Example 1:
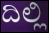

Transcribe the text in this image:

ದಿಲ್ಲಿ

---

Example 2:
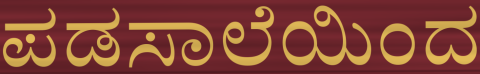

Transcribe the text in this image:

ಪಡಸಾಲೆಯಿಂದ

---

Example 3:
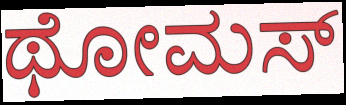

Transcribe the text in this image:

ಥೋಮಸ್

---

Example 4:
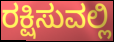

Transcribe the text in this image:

ರಕ್ಷಿಸುವಲ್ಲಿ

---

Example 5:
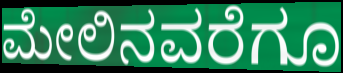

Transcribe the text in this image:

ಮೇಲಿನವರೆಗೂ